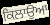
ਕਿਲਾਉਆ